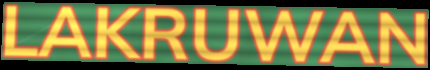
LAKRUWAN